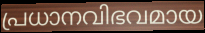
പ്രധാനവിഭവമായ